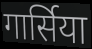
गार्सिया